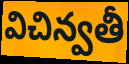
విచిన్వతీ